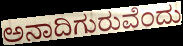
ಅನಾದಿಗುರುವೆಂದು